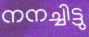
നനച്ചിട്ടു